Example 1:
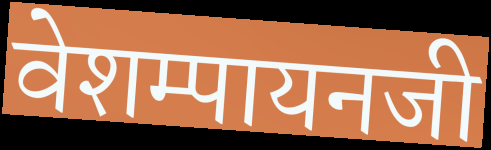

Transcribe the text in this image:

वेशम्पायनजी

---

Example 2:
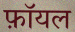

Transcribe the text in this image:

फ़ॉयल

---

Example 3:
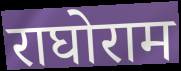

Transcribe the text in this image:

राघोराम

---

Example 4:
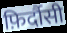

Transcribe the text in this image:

फ़िर्दौसी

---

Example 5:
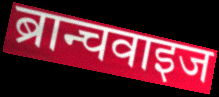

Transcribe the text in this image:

ब्रान्चवाइज